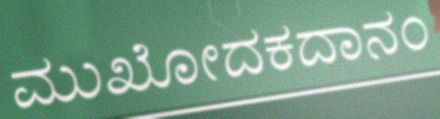
ಮುಖೋದಕದಾನಂ